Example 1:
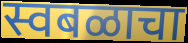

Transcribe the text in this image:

स्वबळाचा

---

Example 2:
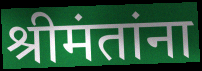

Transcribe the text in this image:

श्रीमंतांना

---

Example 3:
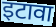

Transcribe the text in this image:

इटावा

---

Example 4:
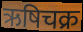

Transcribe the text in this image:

ऋषिचक्र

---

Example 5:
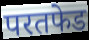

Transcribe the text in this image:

परतफेड